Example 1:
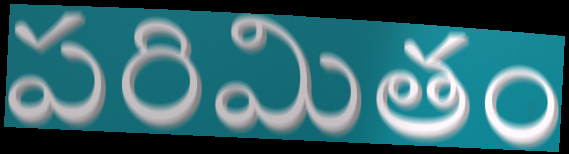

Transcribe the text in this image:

పరిమితం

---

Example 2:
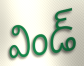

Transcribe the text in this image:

విండ్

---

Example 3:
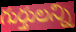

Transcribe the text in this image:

గుర్తులన్ని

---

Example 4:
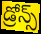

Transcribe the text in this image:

డ్రోన్స్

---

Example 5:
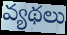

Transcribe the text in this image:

వ్యథలు